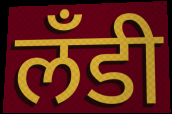
लँडी